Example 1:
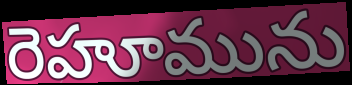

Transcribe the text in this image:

రెహూమును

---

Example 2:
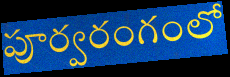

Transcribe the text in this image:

పూర్వరంగంలో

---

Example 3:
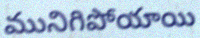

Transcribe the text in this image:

మునిగిపోయాయి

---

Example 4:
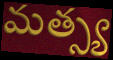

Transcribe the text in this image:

మత్స్య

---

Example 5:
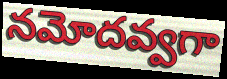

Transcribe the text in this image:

నమోదవ్వగా